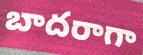
బాదరాగా